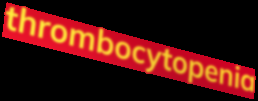
thrombocytopenia